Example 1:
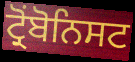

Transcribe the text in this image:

ਟ੍ਰੋਂਬੋਨਿਸਟ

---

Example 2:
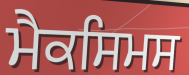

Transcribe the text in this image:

ਮੈਕਸਿਮਸ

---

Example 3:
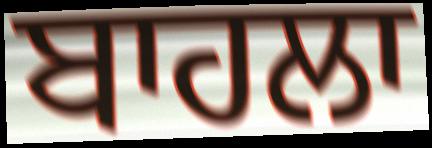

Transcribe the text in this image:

ਬਾਹਲਾ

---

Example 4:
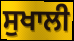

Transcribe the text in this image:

ਸੁਖਾਲੀ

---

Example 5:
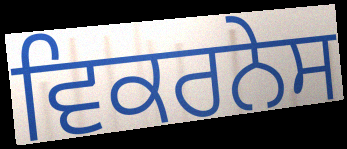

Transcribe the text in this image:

ਵਿਕਰਨੇਸ